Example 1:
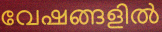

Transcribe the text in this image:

വേഷങ്ങളിൽ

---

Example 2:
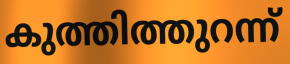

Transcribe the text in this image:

കുത്തിത്തുറന്ന്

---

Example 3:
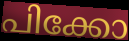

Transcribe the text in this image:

പിക്കോ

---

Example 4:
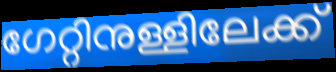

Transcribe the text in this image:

ഗേറ്റിനുള്ളിലേക്ക്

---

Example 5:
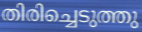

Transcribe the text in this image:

തിരിച്ചെടുത്തു